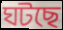
ঘটছে